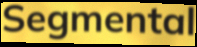
Segmental